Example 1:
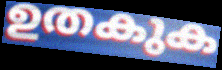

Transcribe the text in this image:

ഉതകുക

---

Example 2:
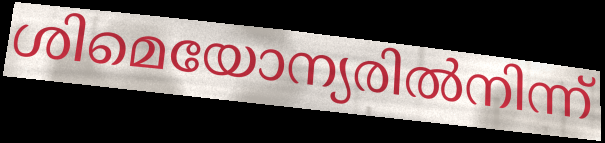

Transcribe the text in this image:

ശിമെയോന്യരിൽനിന്ന്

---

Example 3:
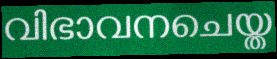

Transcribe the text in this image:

വിഭാവനചെയ്ത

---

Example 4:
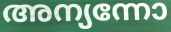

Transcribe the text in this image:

അന്യന്നോ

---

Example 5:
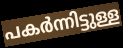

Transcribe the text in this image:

പകർന്നിട്ടുള്ള